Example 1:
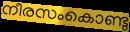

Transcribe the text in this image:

നീരസംകൊണ്ടു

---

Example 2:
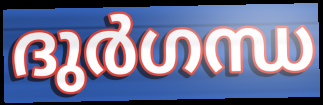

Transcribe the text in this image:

ദുർഗന്ധ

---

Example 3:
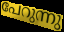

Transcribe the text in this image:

പേറുന്നു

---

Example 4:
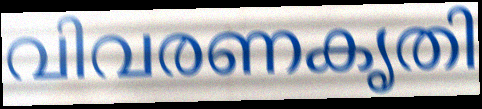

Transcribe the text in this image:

വിവരണകൃതി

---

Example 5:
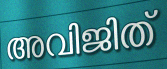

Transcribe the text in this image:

അവിജിത്